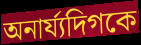
অনার্য্যদিগকে